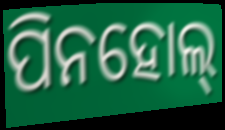
ପିନହୋଲ୍